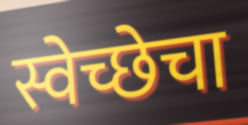
स्वेच्छेचा